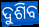
ଦୁଶିବ